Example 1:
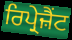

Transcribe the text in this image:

ਰਿਪ੍ਰੇਜ਼ੈਂਟ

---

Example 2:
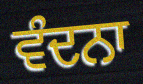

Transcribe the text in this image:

ਵੰਦਨਾ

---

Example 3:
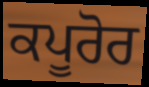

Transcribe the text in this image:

ਕਪੂਰੋਰ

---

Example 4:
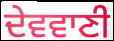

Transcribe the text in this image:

ਦੇਵਵਾਣੀ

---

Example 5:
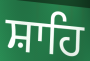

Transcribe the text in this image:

ਸ਼ਾਹਿ